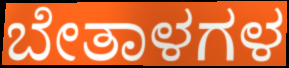
ಬೇತಾಳಗಳ